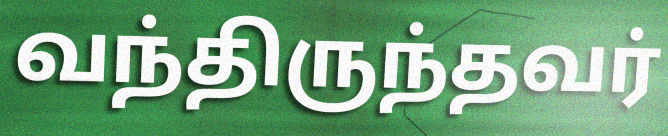
வந்திருந்தவர்